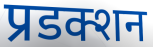
प्रडक्शन